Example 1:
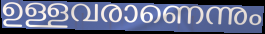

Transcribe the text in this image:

ഉള്ളവരാണെന്നും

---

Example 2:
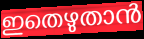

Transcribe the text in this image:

ഇതെഴുതാൻ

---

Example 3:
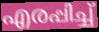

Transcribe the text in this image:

എരപ്പിച്ച്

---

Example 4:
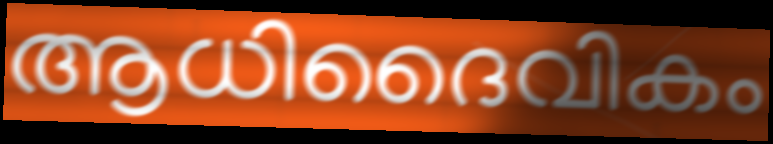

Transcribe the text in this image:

ആധിദൈവികം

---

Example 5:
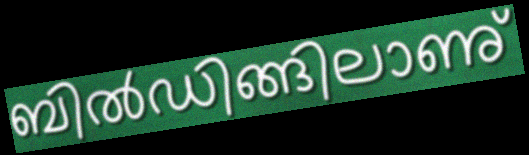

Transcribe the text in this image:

ബിൽഡിങ്ങിലാണു്